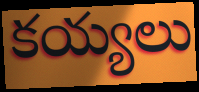
కయ్యలు